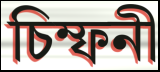
চিম্ফনী